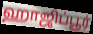
ஹாஜிப்பூர்